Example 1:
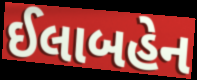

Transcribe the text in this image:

ઈલાબહેન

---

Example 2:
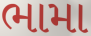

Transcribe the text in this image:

ભામા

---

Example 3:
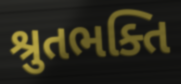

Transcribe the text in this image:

શ્રુતભક્તિ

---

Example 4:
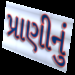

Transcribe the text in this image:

પ્રાણીનું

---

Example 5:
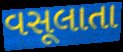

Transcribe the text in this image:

વસૂલાતા